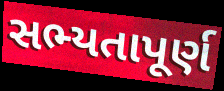
સભ્યતાપૂર્ણ